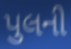
પુલની